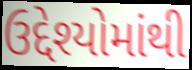
ઉદ્દેશ્યોમાંથી